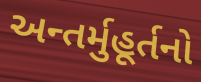
અન્તર્મુહૂર્તનો